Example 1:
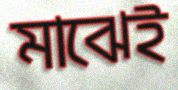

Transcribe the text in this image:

মাঝেই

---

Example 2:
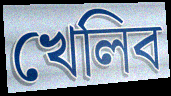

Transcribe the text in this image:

খেলিব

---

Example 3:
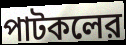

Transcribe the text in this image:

পাটকলের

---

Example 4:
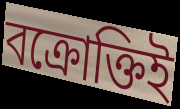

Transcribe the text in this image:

বক্রোক্তিই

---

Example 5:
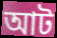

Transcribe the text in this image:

আট